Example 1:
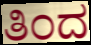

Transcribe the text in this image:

ತಿಂದ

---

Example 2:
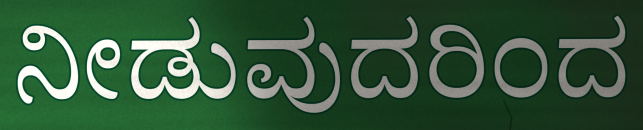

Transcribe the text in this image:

ನೀಡುವುದರಿಂದ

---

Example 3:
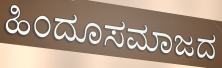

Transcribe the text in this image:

ಹಿಂದೂಸಮಾಜದ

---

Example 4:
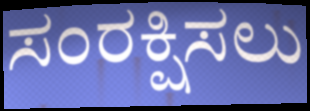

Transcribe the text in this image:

ಸಂರಕ್ಷಿಸಲು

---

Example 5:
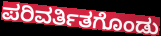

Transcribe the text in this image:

ಪರಿವರ್ತಿತಗೊಂಡು